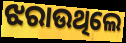
ଝରାଉଥିଲେ